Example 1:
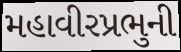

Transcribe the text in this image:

મહાવીરપ્રભુની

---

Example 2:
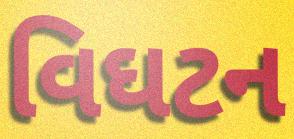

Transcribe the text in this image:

વિઘટન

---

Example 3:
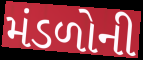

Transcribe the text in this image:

મંડળોની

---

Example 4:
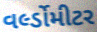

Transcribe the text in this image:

વર્લ્ડોમીટર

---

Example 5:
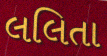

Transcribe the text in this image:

લલિતા